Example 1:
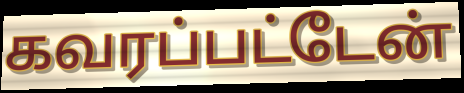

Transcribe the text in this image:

கவரப்பட்டேன்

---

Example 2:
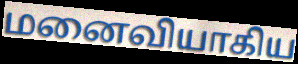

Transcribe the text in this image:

மனைவியாகிய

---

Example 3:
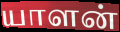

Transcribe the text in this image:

யாளன்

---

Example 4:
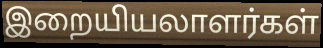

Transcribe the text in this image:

இறையியலாளர்கள்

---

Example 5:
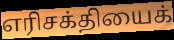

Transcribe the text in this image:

எரிசக்தியைக்